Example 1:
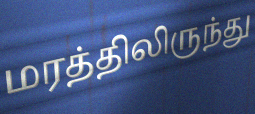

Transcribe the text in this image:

மரத்திலிருந்து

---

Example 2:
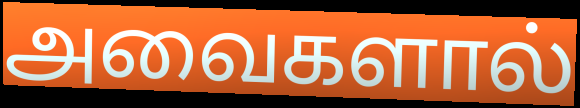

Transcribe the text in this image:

அவைகளால்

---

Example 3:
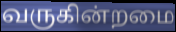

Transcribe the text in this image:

வருகின்றமை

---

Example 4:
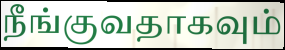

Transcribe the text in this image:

நீங்குவதாகவும்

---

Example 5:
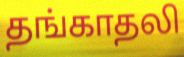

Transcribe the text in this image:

தங்காதலி